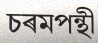
চৰমপন্থী